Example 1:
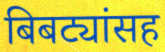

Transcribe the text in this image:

बिबट्यांसह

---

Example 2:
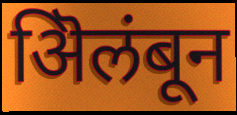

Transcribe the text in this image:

ऄिलंबून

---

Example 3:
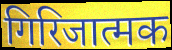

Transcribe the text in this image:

गिरिजात्मक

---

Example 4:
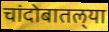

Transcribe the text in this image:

चांदोबातल्या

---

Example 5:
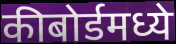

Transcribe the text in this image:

कीबोर्डमध्ये